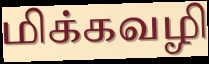
மிக்கவழி